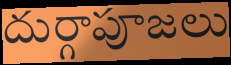
దుర్గాపూజలు